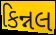
કિન્નલ